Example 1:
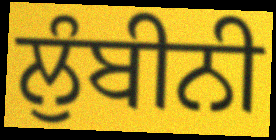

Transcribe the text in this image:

ਲੁੰਬੀਨੀ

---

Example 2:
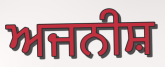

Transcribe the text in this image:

ਅਜਨੀਸ਼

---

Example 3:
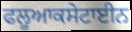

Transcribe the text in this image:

ਫਲੂਆਕਸੇਟਾਈਨ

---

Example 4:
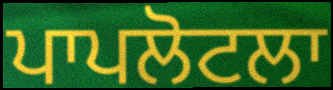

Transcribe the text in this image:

ਪਾਪਲੋਟਲਾ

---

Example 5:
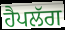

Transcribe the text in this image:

ਹੈਪਲੱਗ